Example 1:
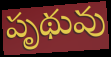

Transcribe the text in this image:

పృథువు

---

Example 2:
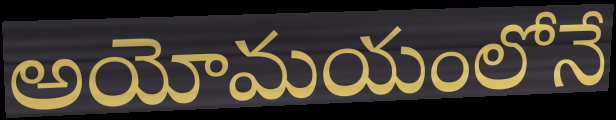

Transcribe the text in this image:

అయోమయంలోనే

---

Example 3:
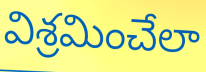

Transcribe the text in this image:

విశ్రమించేలా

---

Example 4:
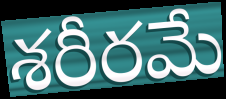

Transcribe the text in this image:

శరీరమే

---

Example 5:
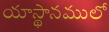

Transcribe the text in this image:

యాస్థానములో